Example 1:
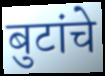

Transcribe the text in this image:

बुटांचे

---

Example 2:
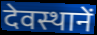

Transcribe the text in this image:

देवस्थानें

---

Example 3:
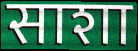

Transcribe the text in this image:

साशा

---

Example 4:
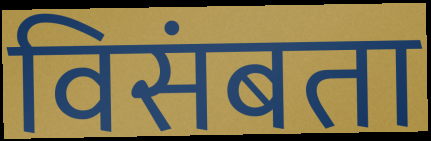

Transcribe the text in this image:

विसंबता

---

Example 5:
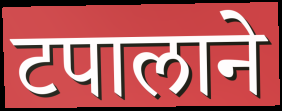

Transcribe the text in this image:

टपालाने